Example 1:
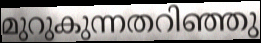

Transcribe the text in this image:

മുറുകുന്നതറിഞ്ഞു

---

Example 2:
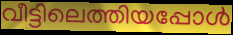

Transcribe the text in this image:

വീട്ടിലെത്തിയപ്പോൾ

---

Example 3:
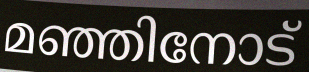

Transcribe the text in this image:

മഞ്ഞിനോട്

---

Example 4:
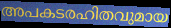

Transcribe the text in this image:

അപകടരഹിതവുമായ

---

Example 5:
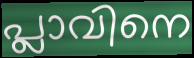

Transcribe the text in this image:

പ്ലാവിനെ